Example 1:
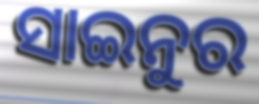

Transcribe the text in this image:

ସାଇନୁର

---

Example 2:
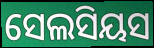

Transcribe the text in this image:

ସେଲସିୟସ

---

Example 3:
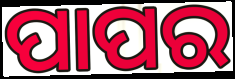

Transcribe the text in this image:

ପାପର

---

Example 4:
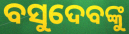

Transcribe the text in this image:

ବସୁଦେବଙ୍କୁ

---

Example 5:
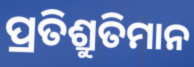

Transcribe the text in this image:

ପ୍ରତିଶ୍ରୁତିମାନ